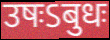
उषःऽबुधः